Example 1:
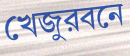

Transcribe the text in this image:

খেজুরবনে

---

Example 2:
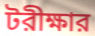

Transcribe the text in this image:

টরীক্ষার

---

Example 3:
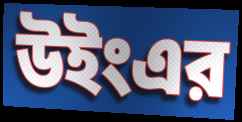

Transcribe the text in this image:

উইংএর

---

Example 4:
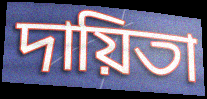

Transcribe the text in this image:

দায়িতা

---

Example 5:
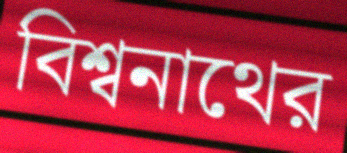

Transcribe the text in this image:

বিশ্বনাথের